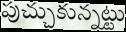
పుచ్చుకున్నట్టు